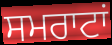
ਸਮਰਾਟਾਂ